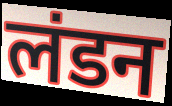
लंडन